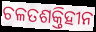
ଚଳତଶକ୍ତିହୀନ